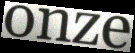
onze